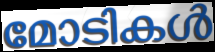
മോടികൾ